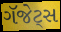
ગૅજેટ્સ